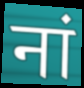
नां